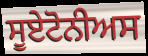
ਸੂਏਟੋਨੀਅਸ